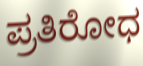
ಪ್ರತಿರೋಧ